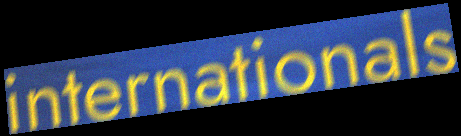
internationals